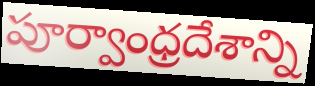
పూర్వాంధ్రదేశాన్ని